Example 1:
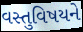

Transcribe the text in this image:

વસ્તુવિષયને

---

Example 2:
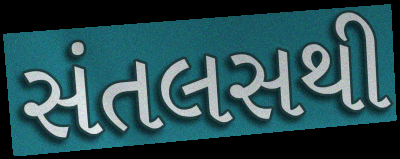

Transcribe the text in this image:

સંતલસથી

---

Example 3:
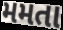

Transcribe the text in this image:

મમતા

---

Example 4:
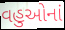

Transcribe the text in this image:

વહુઓનાં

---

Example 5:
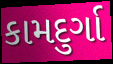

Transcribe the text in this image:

કામદુર્ગા